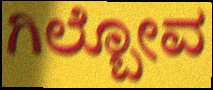
ಗಿಲ್ಬೋವ